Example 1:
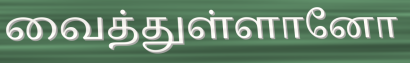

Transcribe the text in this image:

வைத்துள்ளானோ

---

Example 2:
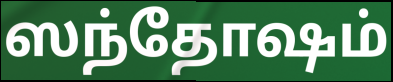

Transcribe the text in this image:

ஸந்தோஷம்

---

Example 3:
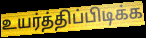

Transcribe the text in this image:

உயர்த்திப்பிடிக்க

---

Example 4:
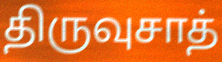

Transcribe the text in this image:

திருவுசாத்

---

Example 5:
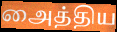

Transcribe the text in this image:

அைத்திய